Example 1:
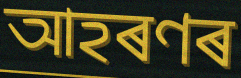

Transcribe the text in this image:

আহৰণৰ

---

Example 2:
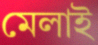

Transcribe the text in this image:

মেলাই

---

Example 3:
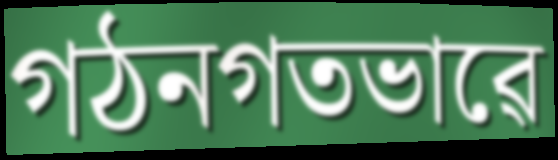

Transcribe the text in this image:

গঠনগতভাৱে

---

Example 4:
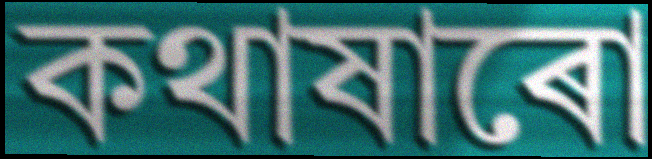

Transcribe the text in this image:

কথাষাৰো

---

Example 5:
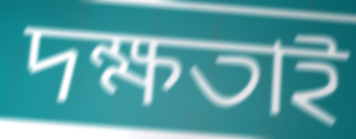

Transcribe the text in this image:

দক্ষতাই